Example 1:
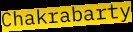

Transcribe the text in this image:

Chakrabarty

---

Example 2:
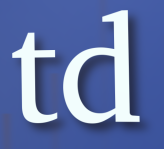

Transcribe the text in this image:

td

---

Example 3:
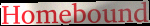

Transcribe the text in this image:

Homebound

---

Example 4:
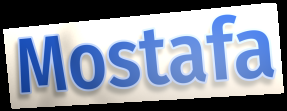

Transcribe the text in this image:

Mostafa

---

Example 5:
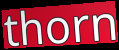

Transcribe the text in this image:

thorn